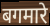
बगमारे